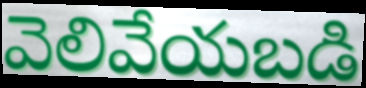
వెలివేయబడి